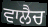
ਵਾਲੈਚ